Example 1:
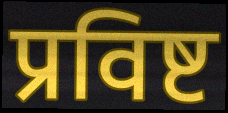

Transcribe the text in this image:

प्रविष्ट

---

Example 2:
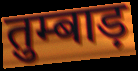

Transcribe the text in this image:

तुम्बाड़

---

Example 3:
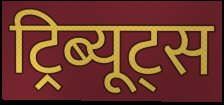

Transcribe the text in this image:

ट्रिब्यूट्स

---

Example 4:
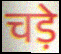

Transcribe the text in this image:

चड़े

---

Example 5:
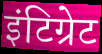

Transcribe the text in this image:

इंटिग्रेट